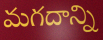
మగదాన్ని